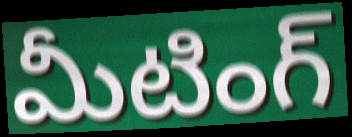
మీటింగ్